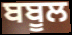
ਬਬੂਲ